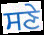
ਸਣੇ